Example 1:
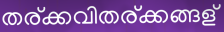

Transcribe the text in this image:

തര്ക്കവിതര്ക്കങ്ങള്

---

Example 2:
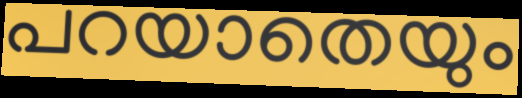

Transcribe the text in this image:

പറയാതെയും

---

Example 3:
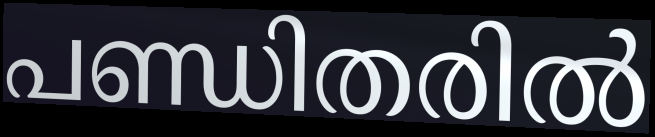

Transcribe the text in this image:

പണ്ഡിതരിൽ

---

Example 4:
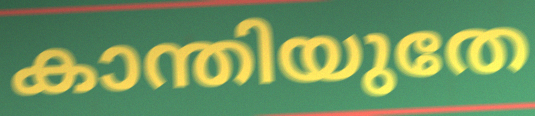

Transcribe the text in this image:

കാന്തിയുതേ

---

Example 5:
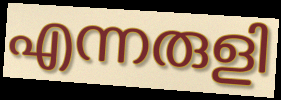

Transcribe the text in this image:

എന്നരുളി